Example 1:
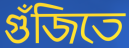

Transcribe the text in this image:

গুঁজিতে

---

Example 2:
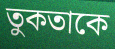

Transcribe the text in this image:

তুকতাকে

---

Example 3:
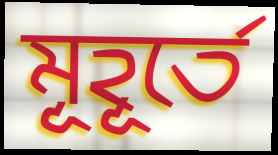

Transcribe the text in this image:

মূহূর্তে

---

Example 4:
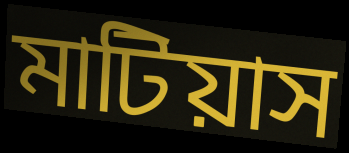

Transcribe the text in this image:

মাটিয়াস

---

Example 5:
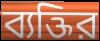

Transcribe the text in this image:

ব্যক্তির